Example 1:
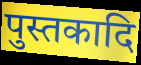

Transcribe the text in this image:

पुस्तकादि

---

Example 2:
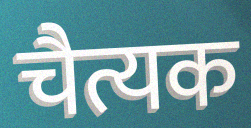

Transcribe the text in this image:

चैत्यक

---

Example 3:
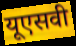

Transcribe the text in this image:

यूएसवी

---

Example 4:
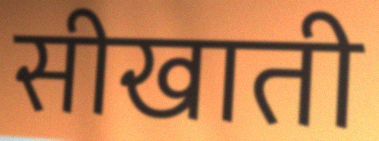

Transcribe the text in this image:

सीखाती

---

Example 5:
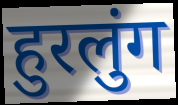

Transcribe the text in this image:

हुरलुंग